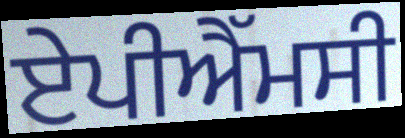
ਏਪੀਐੱਮਸੀ